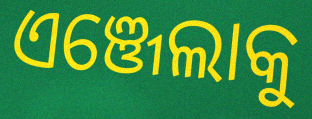
ଏଞ୍ଜେଲାକୁ